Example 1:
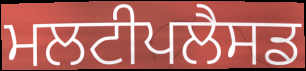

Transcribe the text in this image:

ਮਲਟੀਪਲੈਸਡ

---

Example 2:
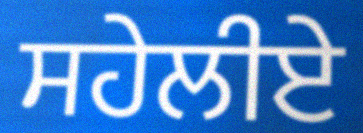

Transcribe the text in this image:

ਸਹੇਲੀਏ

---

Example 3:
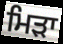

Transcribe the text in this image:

ਮਿੜਾ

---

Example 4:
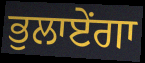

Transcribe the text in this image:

ਭੁਲਾਏਂਗਾ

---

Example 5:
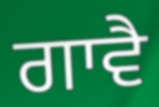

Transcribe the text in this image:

ਗਾਵੈ